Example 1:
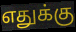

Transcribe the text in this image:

எதுக்கு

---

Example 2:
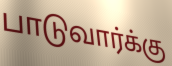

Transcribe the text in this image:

பாடுவார்க்கு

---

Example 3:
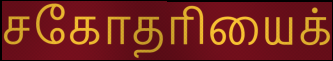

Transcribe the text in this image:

சகோதரியைக்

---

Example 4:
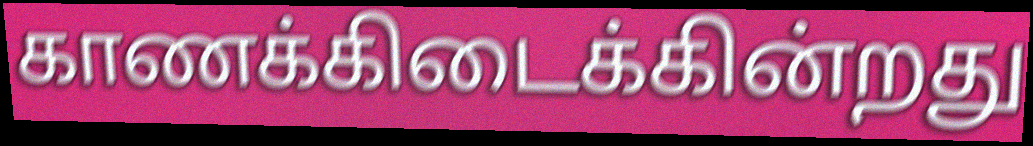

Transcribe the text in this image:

காணக்கிடைக்கின்றது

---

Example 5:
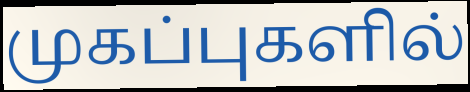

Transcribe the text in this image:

முகப்புகளில்